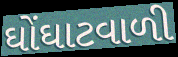
ઘોંઘાટવાળી